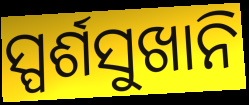
ସ୍ପର୍ଶସୁଖାନି